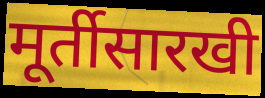
मूर्तीसारखी